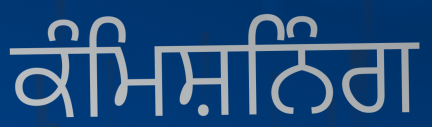
ਕੰਮਿਸ਼ਨਿੰਗ